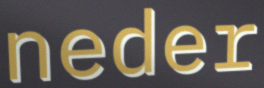
neder